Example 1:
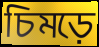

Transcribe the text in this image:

চিমড়ে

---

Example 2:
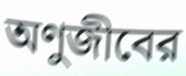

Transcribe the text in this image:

অণুজীবের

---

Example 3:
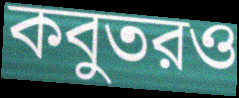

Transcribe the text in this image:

কবুতরও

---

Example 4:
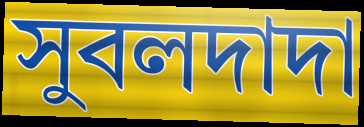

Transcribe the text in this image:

সুবলদাদা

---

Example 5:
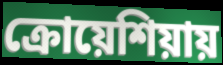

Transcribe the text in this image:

ক্রোয়েশিয়ায়